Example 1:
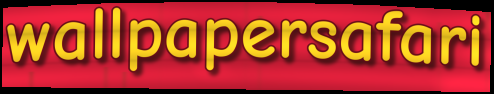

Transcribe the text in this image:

wallpapersafari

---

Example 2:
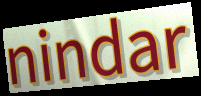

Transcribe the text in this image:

nindar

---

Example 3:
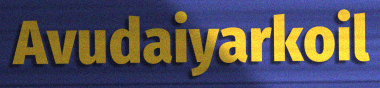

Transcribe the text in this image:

Avudaiyarkoil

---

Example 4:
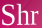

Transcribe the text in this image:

Shr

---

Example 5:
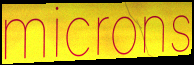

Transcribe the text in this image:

microns